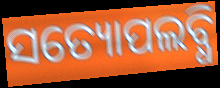
ସତ୍ୟୋପଲବ୍ଧି